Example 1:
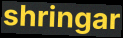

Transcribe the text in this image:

shringar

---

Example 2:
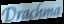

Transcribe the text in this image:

Drachma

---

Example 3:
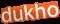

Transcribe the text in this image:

dukho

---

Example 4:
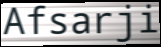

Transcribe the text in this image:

Afsarji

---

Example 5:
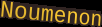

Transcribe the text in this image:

Noumenon